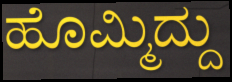
ಹೊಮ್ಮಿದ್ದು